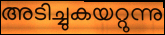
അടിച്ചുകയറ്റുന്നു